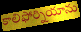
కాలిఫోర్నియాను